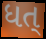
ધત્